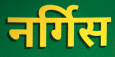
नर्गिस